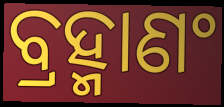
ବ୍ରହ୍ମାଣଂ